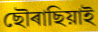
ছৌৰাছিয়াই